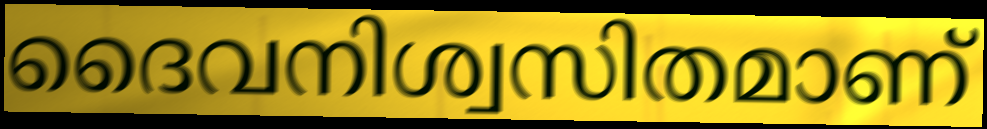
ദൈവനിശ്വസിതമാണ്